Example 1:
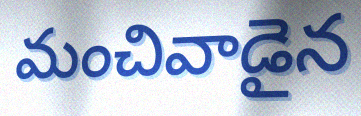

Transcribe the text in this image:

మంచివాడైన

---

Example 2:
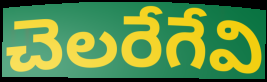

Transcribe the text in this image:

చెలరేగేవి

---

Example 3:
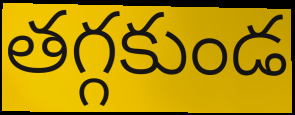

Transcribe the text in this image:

తగ్గకుండ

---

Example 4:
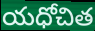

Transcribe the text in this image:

యధోచిత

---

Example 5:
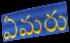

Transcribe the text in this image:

ఏమరు